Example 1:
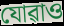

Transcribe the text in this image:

যোৱাও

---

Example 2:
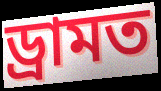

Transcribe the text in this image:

ড্ৰামত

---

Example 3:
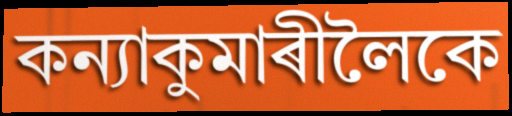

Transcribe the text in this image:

কন্যাকুমাৰীলৈকে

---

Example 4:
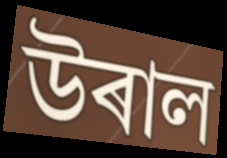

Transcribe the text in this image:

উৰাল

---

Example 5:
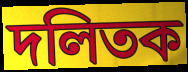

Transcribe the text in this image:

দলিতক